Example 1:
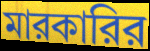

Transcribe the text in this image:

মারকারির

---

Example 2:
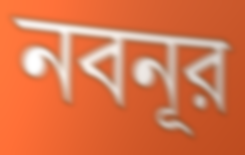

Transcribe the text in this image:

নবনূর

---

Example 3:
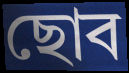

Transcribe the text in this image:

ছোব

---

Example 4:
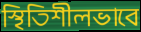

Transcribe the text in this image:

স্থিতিশীলভাবে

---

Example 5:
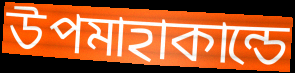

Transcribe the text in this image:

উপমাহাকান্ডে